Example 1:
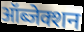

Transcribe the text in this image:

ऑब्‍जेक्‍शन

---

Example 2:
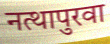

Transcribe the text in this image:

नत्थापुरवा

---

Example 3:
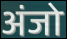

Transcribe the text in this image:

अंजो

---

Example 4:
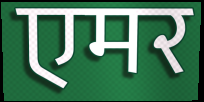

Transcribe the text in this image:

एमर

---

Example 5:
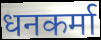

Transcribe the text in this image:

धनकर्मा